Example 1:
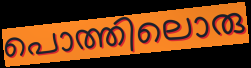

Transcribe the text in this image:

പൊത്തിലൊരു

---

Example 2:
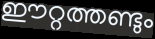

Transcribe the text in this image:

ഈറ്റത്തണ്ടും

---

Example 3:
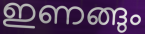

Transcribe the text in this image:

ഇണങ്ങും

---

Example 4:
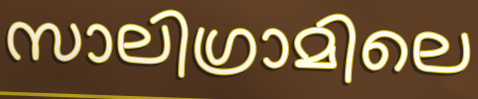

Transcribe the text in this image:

സാലിഗ്രാമിലെ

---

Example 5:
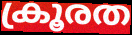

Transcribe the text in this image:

ക്രൂരത